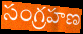
సంగ్రహణ